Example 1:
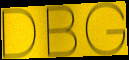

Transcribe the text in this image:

DBG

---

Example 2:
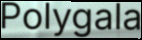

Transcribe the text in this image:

Polygala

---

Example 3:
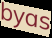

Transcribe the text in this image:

byas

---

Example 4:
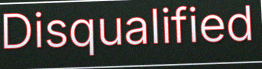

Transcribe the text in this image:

Disqualified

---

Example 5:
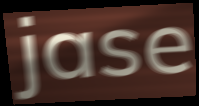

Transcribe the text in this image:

jase